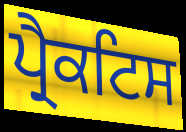
ਪ੍ਰੈਕਟਿਸ